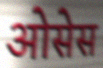
ओसेस